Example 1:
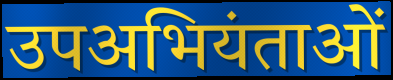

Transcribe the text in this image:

उपअभियंताओं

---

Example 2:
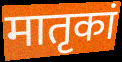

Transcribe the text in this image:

मातृकां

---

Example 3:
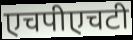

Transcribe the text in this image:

एचपीएचटी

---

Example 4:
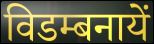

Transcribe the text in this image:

विडम्बनायें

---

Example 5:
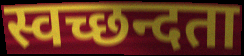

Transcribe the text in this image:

स्वच्छन्दता